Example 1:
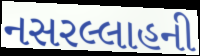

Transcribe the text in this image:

નસરલ્લાહની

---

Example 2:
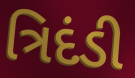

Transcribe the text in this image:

ત્રિદંડી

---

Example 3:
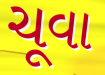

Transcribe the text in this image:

ચૂવા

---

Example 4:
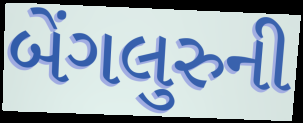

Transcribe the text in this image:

બેંગલુરુની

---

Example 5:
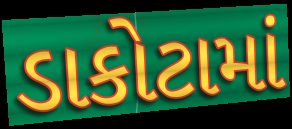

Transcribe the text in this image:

ડાકોટામાં